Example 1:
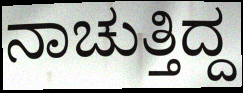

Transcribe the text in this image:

ನಾಚುತ್ತಿದ್ದ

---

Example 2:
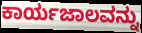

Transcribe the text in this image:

ಕಾರ್ಯಜಾಲವನ್ನು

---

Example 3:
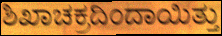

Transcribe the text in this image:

ಶಿಖಾಚಕ್ರದಿಂದಾಯಿತ್ತು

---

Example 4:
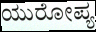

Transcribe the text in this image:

ಯುರೋಪ್ಯ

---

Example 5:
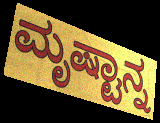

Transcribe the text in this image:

ಮೃಷ್ಟಾನ್ನ